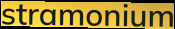
stramonium